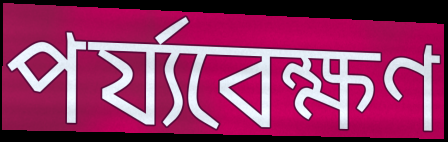
পৰ্য্যবেক্ষণ